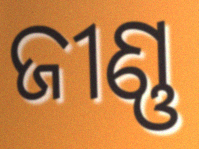
ଜୀଣ୍ଣ